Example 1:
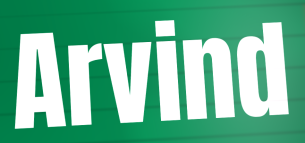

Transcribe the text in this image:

Arvind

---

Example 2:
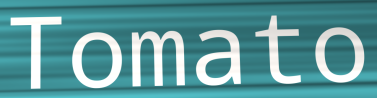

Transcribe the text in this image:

Tomato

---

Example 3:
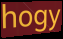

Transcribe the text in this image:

hogy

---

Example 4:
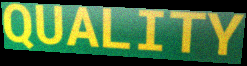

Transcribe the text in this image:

QUALITY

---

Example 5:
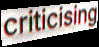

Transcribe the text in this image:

criticising